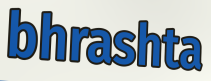
bhrashta